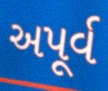
અપૂર્વ